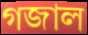
গজাল